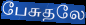
பேசுதலே